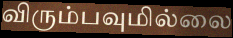
விரும்பவுமில்லை